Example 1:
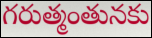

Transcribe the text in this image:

గరుత్మంతునకు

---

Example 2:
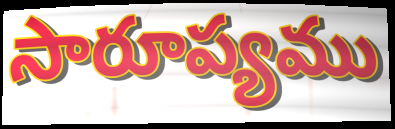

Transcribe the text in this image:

సారూప్యము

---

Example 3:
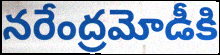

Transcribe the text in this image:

నరేంద్రమోడీకి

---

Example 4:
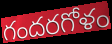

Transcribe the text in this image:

గందరగోళం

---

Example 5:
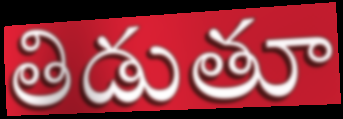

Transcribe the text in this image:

తిడుతూ